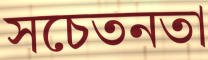
সচেতনতা